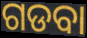
ଗଡବା